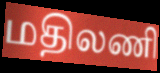
மதிலணி